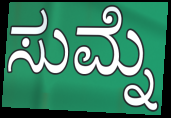
ಸುಮ್ನೆ